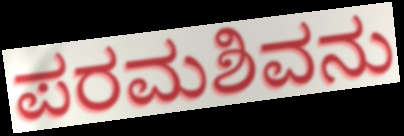
ಪರಮಶಿವನು